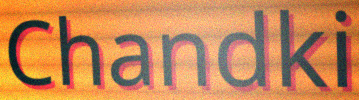
Chandki